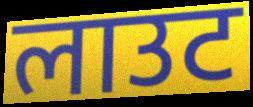
लाउट